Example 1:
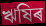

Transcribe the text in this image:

ঋষিৰ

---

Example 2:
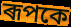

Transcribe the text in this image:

ৰূপকে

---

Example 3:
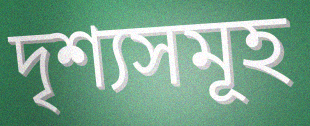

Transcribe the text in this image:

দৃশ্যসমূহ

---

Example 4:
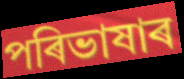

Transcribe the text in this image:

পৰিভাষাৰ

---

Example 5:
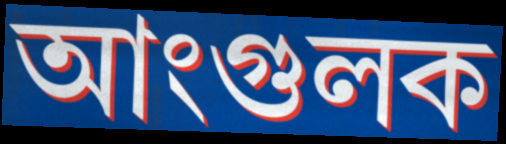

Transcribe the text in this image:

আংগুলক